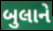
બુલાને